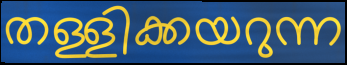
തള്ളിക്കയറുന്ന